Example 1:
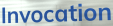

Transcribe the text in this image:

Invocation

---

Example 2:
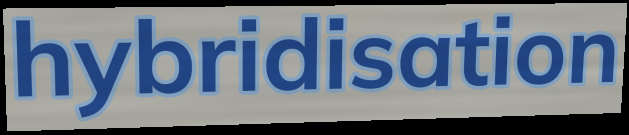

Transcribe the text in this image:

hybridisation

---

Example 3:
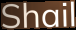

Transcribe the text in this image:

Shail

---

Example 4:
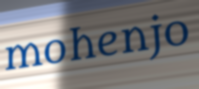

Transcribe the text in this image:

mohenjo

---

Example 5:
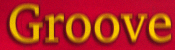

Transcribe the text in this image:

Groove